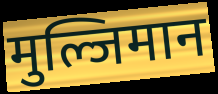
मुल्जिमान